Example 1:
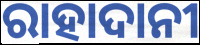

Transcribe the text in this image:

ରାହାଦାନୀ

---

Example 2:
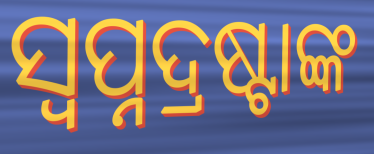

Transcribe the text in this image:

ସ୍ୱପ୍ନଦ୍ରଷ୍ଟାଙ୍କ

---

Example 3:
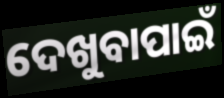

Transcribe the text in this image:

ଦେଖୁବାପାଇଁ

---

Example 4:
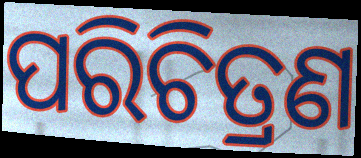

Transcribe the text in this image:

ପରିଚିତ୍ରଣ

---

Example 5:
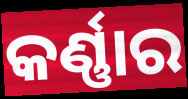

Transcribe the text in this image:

କର୍ଣ୍ଣାର